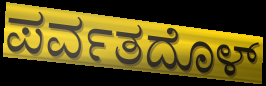
ಪರ್ವತದೊಳ್